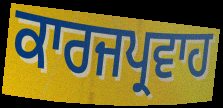
ਕਾਰਜਪ੍ਰਵਾਹ